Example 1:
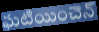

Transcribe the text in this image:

ఘటియించెన్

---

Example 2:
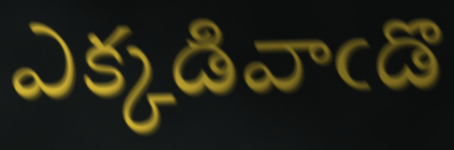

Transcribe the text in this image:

ఎక్కడివాఁడొ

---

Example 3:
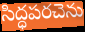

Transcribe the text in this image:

సిద్ధపరచెను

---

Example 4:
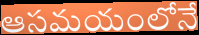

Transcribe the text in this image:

ఆసమయంలోనే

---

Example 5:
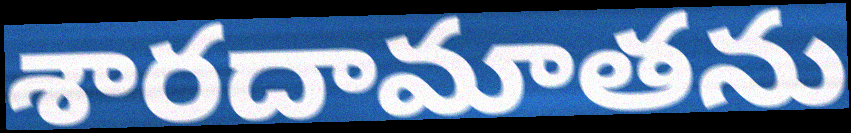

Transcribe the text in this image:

శారదామాతను